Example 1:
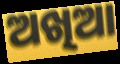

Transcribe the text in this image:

ଅଖିଆ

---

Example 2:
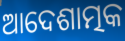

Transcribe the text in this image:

ଆଦେଶାତ୍ମକ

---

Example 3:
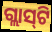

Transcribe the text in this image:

ଗ୍ଲାସ୍‍ଟି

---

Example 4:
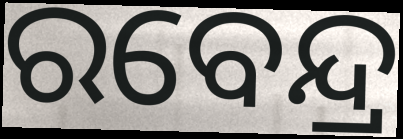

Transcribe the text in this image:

ରବେନ୍ଦ୍ର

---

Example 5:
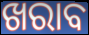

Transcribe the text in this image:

ଖରାବ